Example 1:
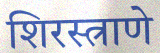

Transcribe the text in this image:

शिरस्त्राणे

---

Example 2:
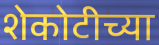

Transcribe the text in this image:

शेकोटीच्या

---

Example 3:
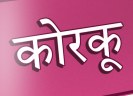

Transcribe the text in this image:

कोरकू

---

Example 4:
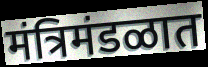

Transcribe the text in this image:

मंत्रिमंडळात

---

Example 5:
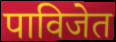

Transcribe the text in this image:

पाविजेत